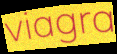
viagra